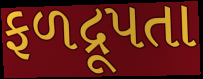
ફળદ્રૂપતા